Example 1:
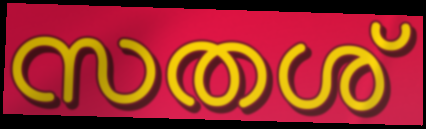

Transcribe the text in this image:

സതശ്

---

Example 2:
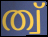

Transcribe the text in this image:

ത്വ്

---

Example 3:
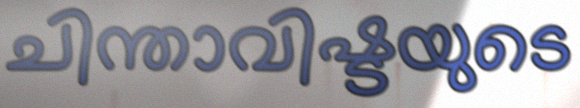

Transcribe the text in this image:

ചിന്താവിഷ്ടയുടെ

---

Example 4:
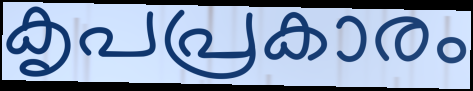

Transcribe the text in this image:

കൃപപ്രകാരം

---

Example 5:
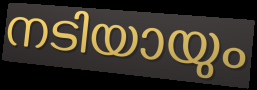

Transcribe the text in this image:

നടിയായും